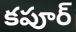
కపూర్